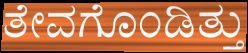
ತೇವಗೊಂಡಿತ್ತು